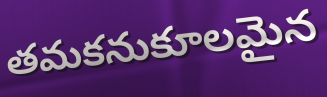
తమకనుకూలమైన